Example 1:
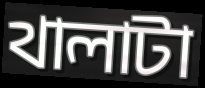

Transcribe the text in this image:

থালাটা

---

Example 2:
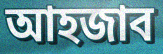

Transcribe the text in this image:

আহজাব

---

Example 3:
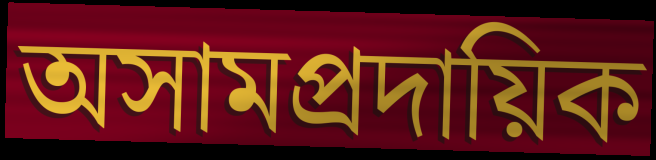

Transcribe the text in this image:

অসামপ্রদায়িক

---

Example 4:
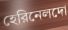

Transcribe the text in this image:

হেরিনেলদো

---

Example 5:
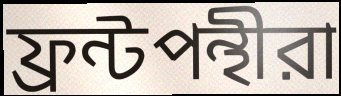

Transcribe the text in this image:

ফ্রন্টপন্থীরা